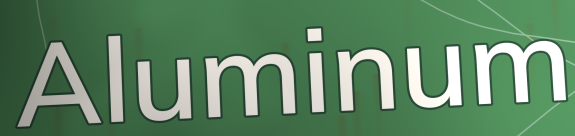
Aluminum